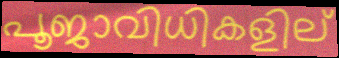
പൂജാവിധികളില്